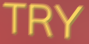
TRY